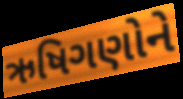
ઋષિગણોને